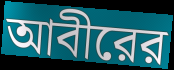
আবীরের